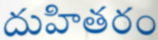
దుహితరం